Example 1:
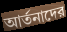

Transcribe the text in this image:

আর্তনাদের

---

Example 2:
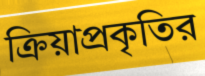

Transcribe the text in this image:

ক্রিয়াপ্রকৃতির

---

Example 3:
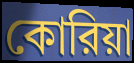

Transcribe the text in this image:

কোরিয়া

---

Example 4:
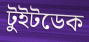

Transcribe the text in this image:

টুইটডেক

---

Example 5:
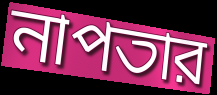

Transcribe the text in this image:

নাপতার